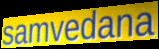
samvedana